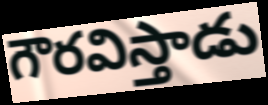
గౌరవిస్తాడు